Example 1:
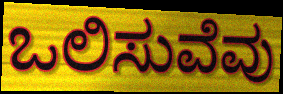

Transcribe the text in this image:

ಒಲಿಸುವೆವು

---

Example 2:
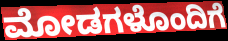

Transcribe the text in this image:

ಮೋಡಗಳೊಂದಿಗೆ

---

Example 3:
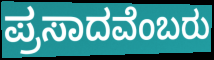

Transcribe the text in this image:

ಪ್ರಸಾದವೆಂಬರು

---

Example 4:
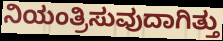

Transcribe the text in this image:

ನಿಯಂತ್ರಿಸುವುದಾಗಿತ್ತು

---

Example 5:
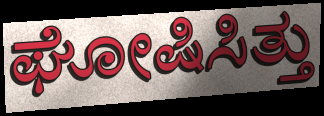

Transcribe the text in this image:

ಘೋಷಿಸಿತ್ತು